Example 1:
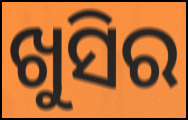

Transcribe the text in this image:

ଖୁସିର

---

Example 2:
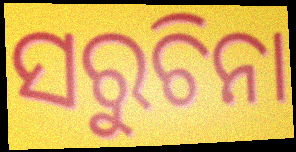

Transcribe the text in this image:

ସରୁଚିନା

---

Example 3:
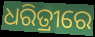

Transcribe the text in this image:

ଧରିତ୍ରୀରେ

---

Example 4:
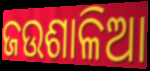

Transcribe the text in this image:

ଜଉଶାଳିଆ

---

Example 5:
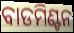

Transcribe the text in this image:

ବାଡମିଣ୍ଟନ